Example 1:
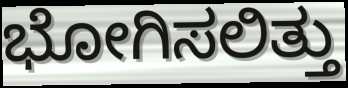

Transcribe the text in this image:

ಭೋಗಿಸಲಿತ್ತು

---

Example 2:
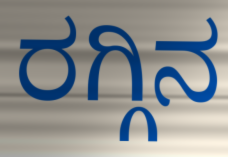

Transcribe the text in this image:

ರಗ್ಗಿನ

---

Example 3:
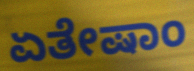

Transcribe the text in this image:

ಏತೇಷಾಂ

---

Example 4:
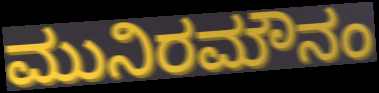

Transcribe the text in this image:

ಮುನಿರಮೌನಂ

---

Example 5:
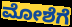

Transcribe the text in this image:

ಮೋಶೆಗೆ